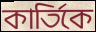
কার্তিকে